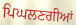
ਪਿਘਲਣਗੀਆਂ